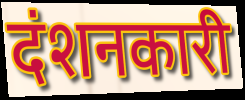
दंशनकारी